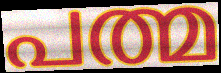
പത്മ